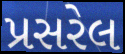
પ્રસરેલ